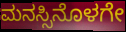
ಮನಸ್ಸಿನೊಳಗೇ